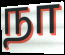
நா